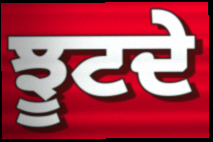
ਝੂਟਦੇ